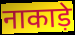
नाकाड़े